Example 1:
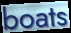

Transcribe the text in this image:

boats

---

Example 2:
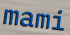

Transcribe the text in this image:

mami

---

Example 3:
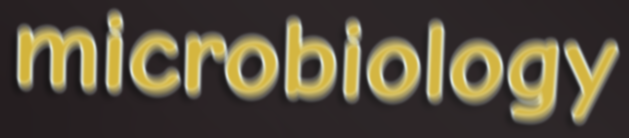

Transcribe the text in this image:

microbiology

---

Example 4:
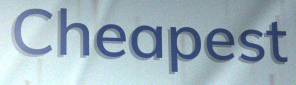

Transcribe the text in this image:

Cheapest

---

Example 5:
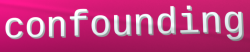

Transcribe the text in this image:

confounding